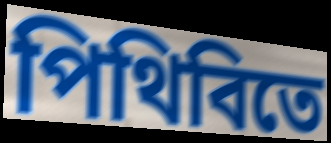
পিথিবিতে